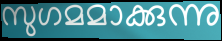
സുഗമമാക്കുന്നു